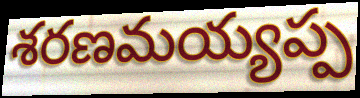
శరణమయ్యప్ప